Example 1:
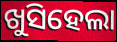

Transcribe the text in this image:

ଖୁସିହେଲା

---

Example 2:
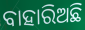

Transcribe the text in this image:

ବାହାରିଅଛି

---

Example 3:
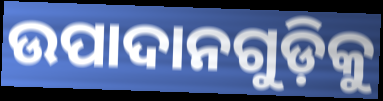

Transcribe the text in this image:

ଉପାଦାନଗୁଡ଼ିକୁ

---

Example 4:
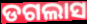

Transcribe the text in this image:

ଡଗଲାସ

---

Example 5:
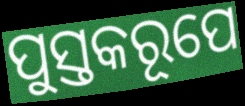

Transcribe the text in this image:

ପୁସ୍ତକରୂପେ